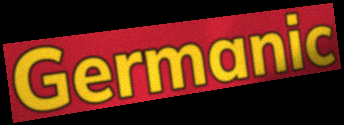
Germanic